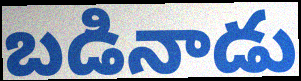
బడినాడు